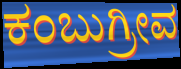
ಕಂಬುಗ್ರೀವ